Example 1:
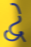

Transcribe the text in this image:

દ્વે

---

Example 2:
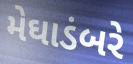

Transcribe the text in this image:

મેઘાડંબરે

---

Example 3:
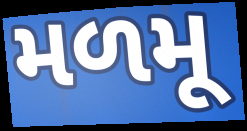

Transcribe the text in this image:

મળમૂ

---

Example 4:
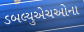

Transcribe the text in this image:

ડબલ્યુએચઓના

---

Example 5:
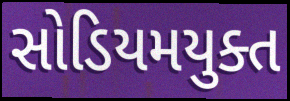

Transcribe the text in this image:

સોડિયમયુક્ત